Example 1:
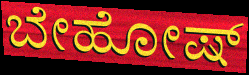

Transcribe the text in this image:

ಬೇಹೋಷ್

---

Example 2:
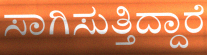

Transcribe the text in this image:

ಸಾಗಿಸುತ್ತಿದ್ದಾರೆ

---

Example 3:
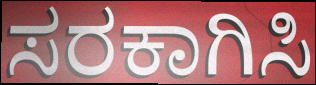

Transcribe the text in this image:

ಸರಕಾಗಿಸಿ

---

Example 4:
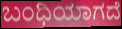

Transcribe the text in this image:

ಬಂಧಿಯಾಗದೆ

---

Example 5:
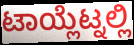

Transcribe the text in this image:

ಟಾಯ್ಲೆಟ್ನಲ್ಲಿ